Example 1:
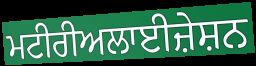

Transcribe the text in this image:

ਮਟੀਰੀਅਲਾਈਜ਼ੇਸ਼ਨ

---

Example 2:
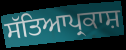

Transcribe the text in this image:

ਸੱਤਿਆਪ੍ਰਕਾਸ਼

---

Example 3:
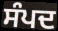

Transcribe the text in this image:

ਸੰਪਦ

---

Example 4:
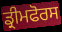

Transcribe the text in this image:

ਡ੍ਰੀਮਫੋਰਸ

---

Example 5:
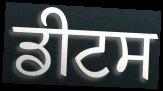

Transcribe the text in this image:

ਡੀਟਸ